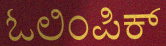
ಓಲಿಂಪಿಕ್